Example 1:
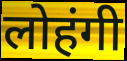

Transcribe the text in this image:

लोहंगी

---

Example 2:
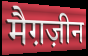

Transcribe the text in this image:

मैग़ज़ीन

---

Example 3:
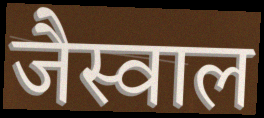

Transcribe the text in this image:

जैस्वाल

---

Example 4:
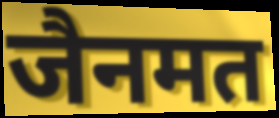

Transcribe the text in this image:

जैनमत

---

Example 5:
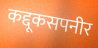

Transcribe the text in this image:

कद्दूकसपनीर